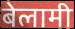
बेलामी